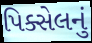
પિક્સેલનું